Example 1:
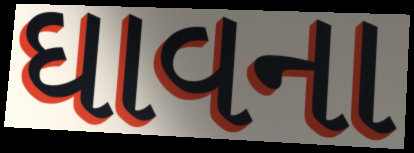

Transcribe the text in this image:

ઘાવના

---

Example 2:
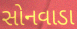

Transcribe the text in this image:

સોનવાડા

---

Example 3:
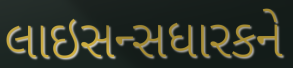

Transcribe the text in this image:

લાઇસન્સધારકને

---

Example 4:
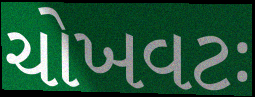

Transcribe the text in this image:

ચોખવટઃ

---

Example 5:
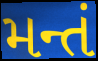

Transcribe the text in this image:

મન્તં